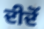
ਦੀਦੋਂ